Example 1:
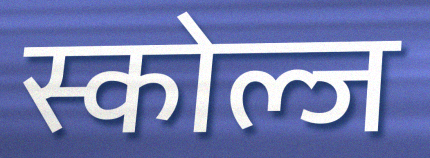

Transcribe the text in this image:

स्कोल्ज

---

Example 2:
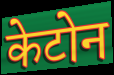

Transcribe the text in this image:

केटोन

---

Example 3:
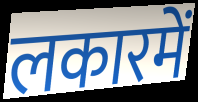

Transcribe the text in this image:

लकारमें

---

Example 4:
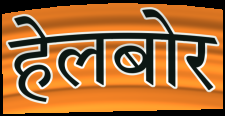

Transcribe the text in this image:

हेलबोर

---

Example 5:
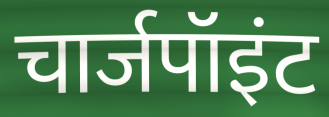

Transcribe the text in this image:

चार्जपॉइंट